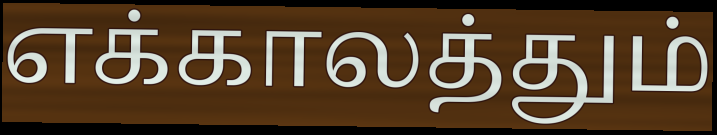
எக்காலத்தும்